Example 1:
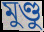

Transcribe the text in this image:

মুণ্ডু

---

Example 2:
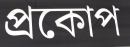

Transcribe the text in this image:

প্ৰকোপ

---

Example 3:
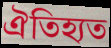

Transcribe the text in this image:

ঐতিহ্যত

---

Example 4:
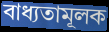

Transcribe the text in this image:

বাধ্যতামূলক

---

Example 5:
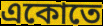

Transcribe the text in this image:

একোতে